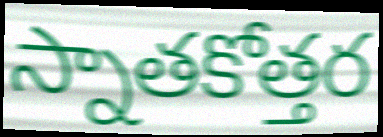
స్నాతకోత్తర